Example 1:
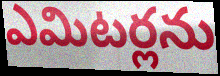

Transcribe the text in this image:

ఎమిటర్లను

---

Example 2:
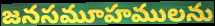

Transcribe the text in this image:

జనసమూహములను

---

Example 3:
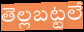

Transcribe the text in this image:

తెల్లబట్టలే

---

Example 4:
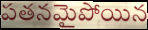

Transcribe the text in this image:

పతనమైపోయిన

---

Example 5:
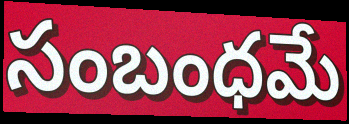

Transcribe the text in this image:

సంబంధమే